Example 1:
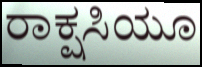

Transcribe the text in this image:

ರಾಕ್ಷಸಿಯೂ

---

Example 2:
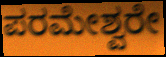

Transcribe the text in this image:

ಪರಮೇಶ್ವರೇ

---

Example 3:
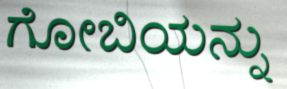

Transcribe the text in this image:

ಗೋಬಿಯನ್ನು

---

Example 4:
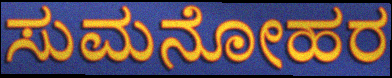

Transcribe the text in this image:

ಸುಮನೋಹರ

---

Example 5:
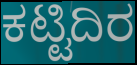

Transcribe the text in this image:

ಕಟ್ಟಿದಿರ